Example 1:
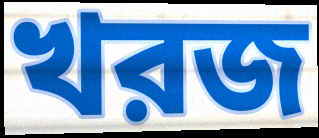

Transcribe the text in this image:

খরজ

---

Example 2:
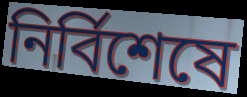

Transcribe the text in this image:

নির্বিশেষে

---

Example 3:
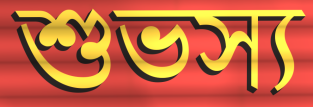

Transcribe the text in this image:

শুভস্য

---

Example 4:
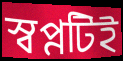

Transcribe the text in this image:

স্বপ্নটিই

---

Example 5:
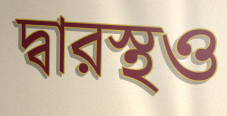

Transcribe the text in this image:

দ্বারস্থও